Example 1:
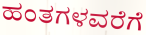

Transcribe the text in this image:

ಹಂತಗಳವರೆಗೆ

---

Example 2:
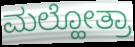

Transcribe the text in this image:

ಮಲ್ಹೋತ್ರಾ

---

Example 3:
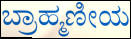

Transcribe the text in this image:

ಬ್ರಾಹ್ಮಣೀಯ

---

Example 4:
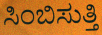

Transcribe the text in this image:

ಸಿಂಬಿಸುತ್ತಿ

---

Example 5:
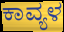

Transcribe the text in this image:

ಕಾವ್ಯಳ